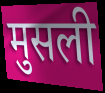
मुसली